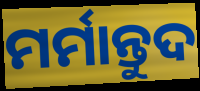
ମର୍ମାନ୍ତୁଦ